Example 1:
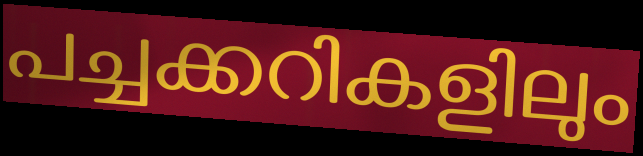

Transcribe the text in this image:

പച്ചക്കറികളിലും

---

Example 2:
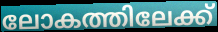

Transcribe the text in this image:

ലോകത്തിലേക്ക്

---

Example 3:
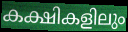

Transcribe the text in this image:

കക്ഷികളിലും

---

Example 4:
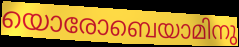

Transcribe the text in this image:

യൊരോബെയാമിനു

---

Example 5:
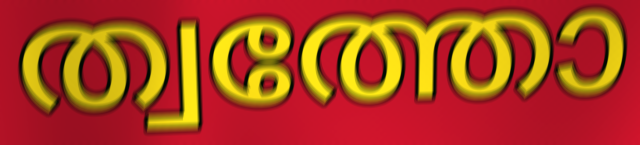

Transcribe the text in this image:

ത്വത്തോ